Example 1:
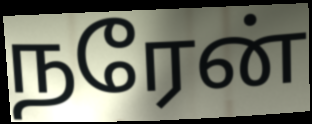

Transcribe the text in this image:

நரேன்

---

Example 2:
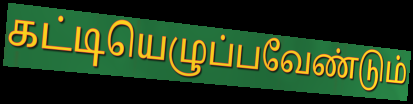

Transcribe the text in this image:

கட்டியெழுப்பவேண்டும்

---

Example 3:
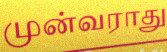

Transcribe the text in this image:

முன்வராது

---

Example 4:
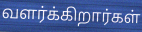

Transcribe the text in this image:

வளர்க்கிறார்கள்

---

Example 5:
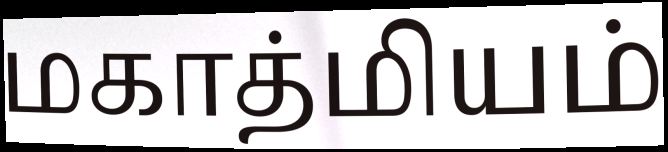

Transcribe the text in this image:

மகாத்மியம்